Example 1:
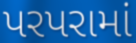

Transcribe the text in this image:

પરપરામાં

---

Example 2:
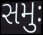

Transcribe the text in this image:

સમુઃ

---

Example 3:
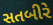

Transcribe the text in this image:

સતબીરે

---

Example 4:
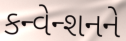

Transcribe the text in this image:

કન્વેન્શનને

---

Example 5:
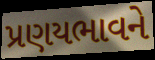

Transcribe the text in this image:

પ્રણયભાવને